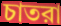
চাতরা